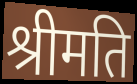
श्रीमति